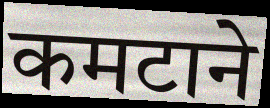
कमटाने